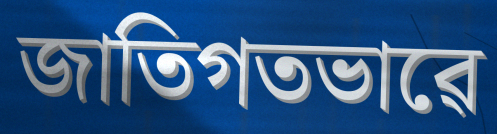
জাতিগতভাৱে